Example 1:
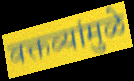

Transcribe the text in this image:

वक्तव्यांमुळे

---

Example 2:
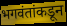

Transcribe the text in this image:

भगवंतांकडून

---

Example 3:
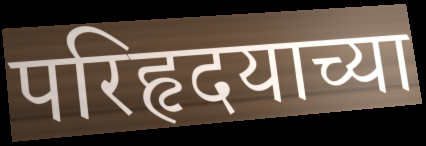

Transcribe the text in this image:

परिहृदयाच्या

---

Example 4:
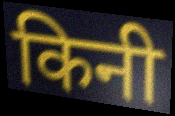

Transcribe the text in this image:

किनी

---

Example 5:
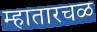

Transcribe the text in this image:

म्हातारचळ